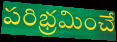
పరిభ్రమించే